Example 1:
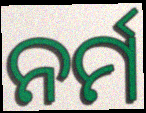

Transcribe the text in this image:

ନର୍ମ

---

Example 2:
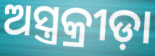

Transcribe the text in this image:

ଅସ୍ତ୍ରକ୍ରୀଡ଼ା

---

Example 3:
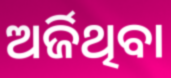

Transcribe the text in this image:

ଅର୍ଜିଥିବା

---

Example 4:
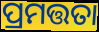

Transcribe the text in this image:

ପ୍ରମତ୍ତତା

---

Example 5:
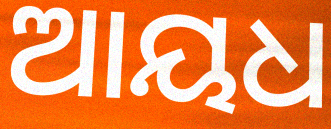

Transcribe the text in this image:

ଆୟଧ